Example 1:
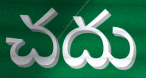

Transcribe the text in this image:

చదు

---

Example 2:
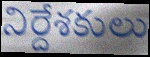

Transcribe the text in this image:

నిర్దేశకులు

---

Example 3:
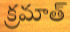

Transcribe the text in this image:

క్రమాత్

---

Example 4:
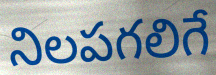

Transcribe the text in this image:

నిలపగలిగే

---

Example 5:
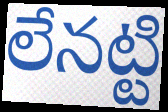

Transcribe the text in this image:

లేనట్టి